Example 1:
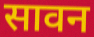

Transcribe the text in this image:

सावन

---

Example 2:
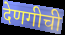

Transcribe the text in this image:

देणगीची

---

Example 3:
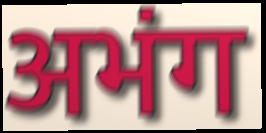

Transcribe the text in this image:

अभंग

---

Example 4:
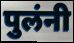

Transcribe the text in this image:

पुलंनी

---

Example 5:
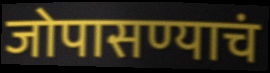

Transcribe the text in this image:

जोपासण्याचं